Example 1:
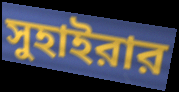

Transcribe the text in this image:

সুহাইরার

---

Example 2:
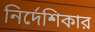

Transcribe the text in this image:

নির্দেশিকার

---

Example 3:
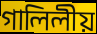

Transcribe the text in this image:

গালিলীয়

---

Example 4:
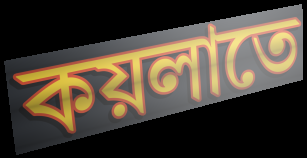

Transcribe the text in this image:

কয়লাতে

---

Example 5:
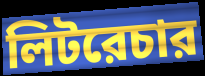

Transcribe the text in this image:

লিটরেচার